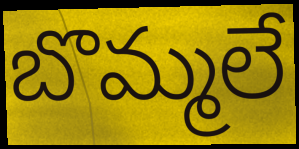
బొమ్మలే